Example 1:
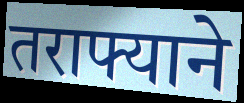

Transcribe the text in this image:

तराफ्याने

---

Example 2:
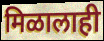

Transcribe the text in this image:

मिळालाही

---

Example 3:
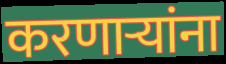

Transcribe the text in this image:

करणार्‍यांना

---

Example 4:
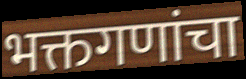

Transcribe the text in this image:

भक्तगणांचा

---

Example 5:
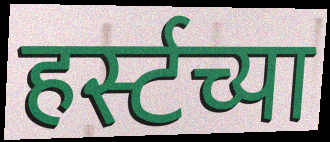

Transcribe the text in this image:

हर्स्टच्या